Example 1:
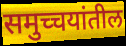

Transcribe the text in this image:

समुच्चयांतील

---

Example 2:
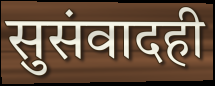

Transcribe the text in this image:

सुसंवादही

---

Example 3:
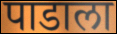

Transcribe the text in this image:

पाडाला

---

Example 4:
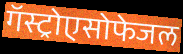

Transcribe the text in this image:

गॅस्ट्रोएसोफेजल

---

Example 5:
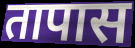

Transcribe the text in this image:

तापास